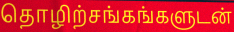
தொழிற்சங்கங்களுடன்